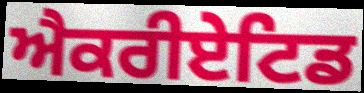
ਐਕਰੀਏਟਿਡ